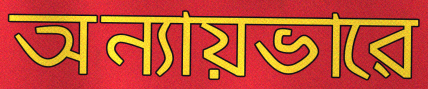
অন্যায়ভাৱে